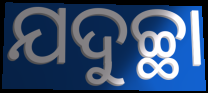
ଯଦୁଚ୍ଛା